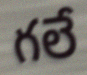
గలే